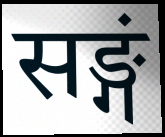
सङ्गं